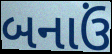
બનાઉં